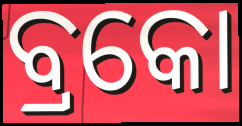
ବ୍ରକୋ